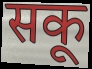
सकू